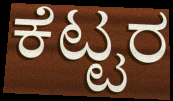
ಕೆಟ್ಟರ